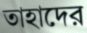
তাহাদের